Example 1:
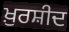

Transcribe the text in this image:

ਖ਼ੁਰਸ਼ੀਦ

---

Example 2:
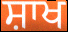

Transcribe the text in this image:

ਸ਼ਾਖ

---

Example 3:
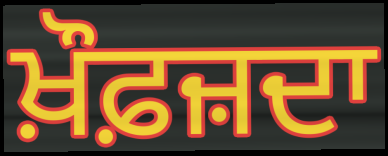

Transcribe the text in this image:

ਖ਼ੌਫ਼ਜ਼ਦਾ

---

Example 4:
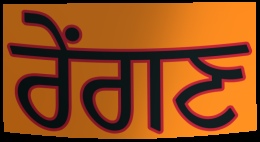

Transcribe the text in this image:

ਰੇਂਗਣ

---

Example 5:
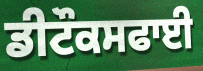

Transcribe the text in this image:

ਡੀਟੌਕਸਫਾਈ